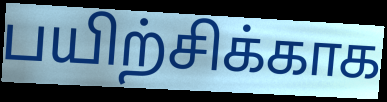
பயிற்சிக்காக